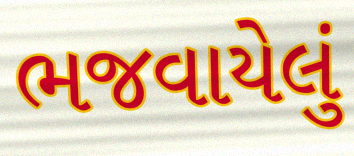
ભજવાયેલું